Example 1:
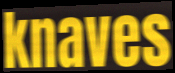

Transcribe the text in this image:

knaves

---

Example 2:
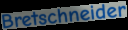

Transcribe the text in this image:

Bretschneider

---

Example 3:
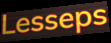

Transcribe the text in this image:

Lesseps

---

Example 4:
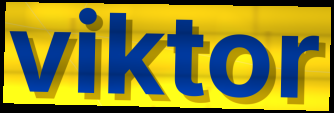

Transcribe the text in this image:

viktor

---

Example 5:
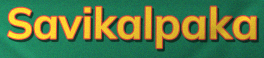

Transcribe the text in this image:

Savikalpaka